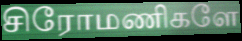
சிரோமணிகளே